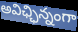
అవిఛ్ఛిన్నంగా